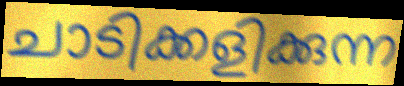
ചാടിക്കളിക്കുന്ന